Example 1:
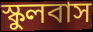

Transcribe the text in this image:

স্কুলবাস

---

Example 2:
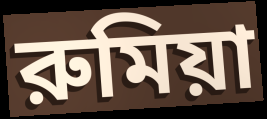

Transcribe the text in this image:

রুমিয়া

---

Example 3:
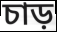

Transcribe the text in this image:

চাড়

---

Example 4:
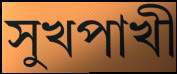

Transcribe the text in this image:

সুখপাখী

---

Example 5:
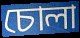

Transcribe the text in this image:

চোলা